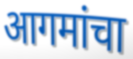
आगमांचा